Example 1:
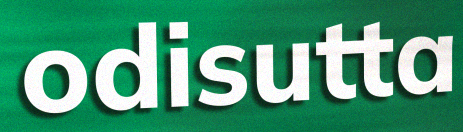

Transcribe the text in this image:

odisutta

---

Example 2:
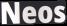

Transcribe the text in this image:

Neos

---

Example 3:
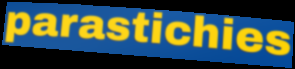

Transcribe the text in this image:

parastichies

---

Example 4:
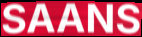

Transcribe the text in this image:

SAANS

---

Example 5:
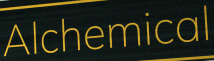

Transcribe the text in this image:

Alchemical